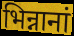
भिन्नानां